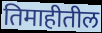
तिमाहीतील